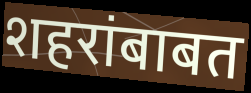
शहरांबाबत